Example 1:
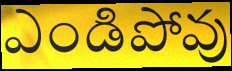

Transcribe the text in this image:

ఎండిపోవు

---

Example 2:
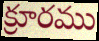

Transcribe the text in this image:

క్రూరము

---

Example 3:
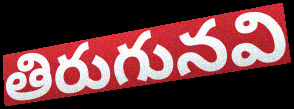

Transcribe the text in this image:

తిరుగునవి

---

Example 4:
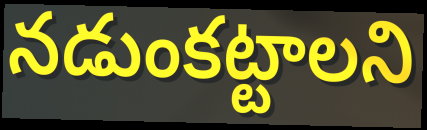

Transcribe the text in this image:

నడుంకట్టాలని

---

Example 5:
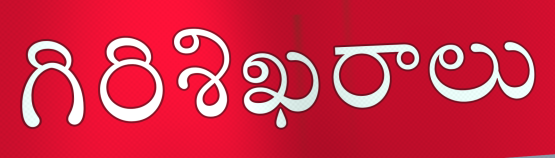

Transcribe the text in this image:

గిరిశిఖరాలు